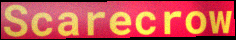
Scarecrow